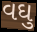
વઘુ